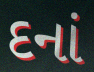
દનાં